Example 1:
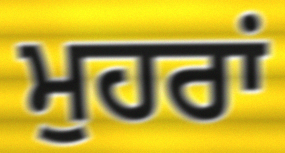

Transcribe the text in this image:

ਮੁਹਰਾਂ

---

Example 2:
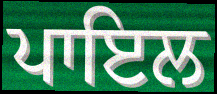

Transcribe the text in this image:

ਪਾਇਲ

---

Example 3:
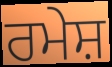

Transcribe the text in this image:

ਰਮੇਸ਼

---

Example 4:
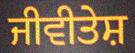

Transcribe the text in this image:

ਜੀਵੀਤੇਸ਼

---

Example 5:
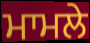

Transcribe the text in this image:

ਮਾਮਲੇ